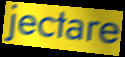
jectare